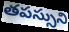
తపస్సుని